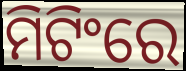
ମିଟିଂରେ